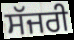
ਸੱਜਰੀ